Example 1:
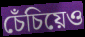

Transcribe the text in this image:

চেঁচিয়েও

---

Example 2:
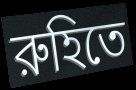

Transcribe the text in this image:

রুহিতে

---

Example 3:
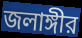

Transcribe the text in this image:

জলাঙ্গীর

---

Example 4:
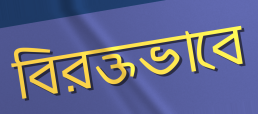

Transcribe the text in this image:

বিরক্তভাবে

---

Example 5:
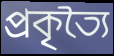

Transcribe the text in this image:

প্রকৃত্যৈ